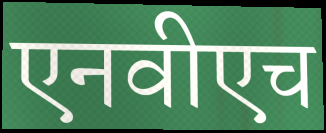
एनवीएच